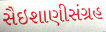
સૈઇશાણીસંગ્રહ